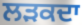
ਲੜਕਦਾ